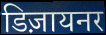
डिज़ायनर